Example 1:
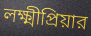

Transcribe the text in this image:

লক্ষ্মীপ্রিয়ার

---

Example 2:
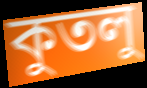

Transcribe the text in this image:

কুতলু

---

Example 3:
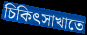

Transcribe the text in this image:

চিকিৎসাখাতে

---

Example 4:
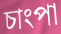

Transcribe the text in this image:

চাংপা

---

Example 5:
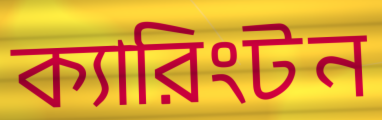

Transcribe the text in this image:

ক্যারিংটন